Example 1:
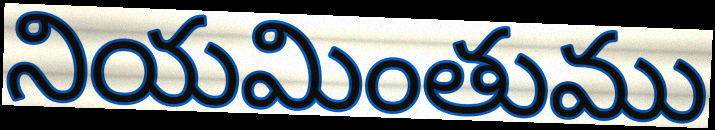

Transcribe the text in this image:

నియమింతుము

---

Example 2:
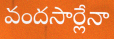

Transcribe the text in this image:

వందసార్లేనా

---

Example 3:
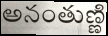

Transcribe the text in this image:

అనంతుణ్ణి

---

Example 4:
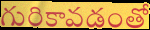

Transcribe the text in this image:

గురికావడంతో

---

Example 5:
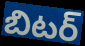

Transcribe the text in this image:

బిటర్